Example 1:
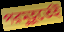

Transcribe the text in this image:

পরমুহূর্তেই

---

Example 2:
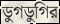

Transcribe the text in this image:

ডুগডুগির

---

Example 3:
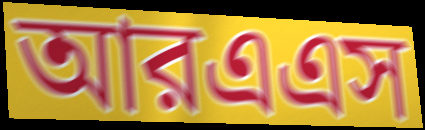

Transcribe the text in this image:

আরএএস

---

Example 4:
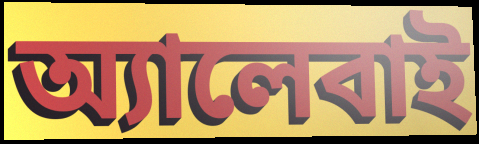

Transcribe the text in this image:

অ্যালেবাই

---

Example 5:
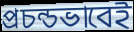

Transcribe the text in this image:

প্রচন্ডভাবেই